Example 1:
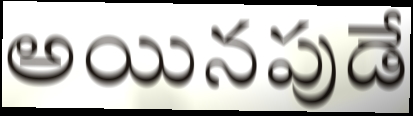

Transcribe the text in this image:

అయినపుడే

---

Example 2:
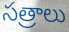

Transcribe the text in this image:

సత్రాలు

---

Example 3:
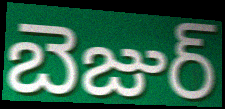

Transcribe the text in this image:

బెజుర్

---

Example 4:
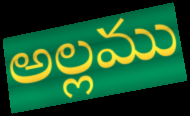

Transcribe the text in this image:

అల్లము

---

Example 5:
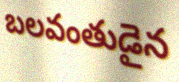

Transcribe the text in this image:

బలవంతుడైన